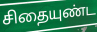
சிதையுண்ட